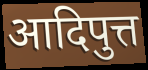
आदिपुत्त